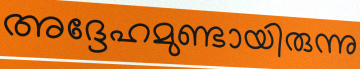
അദ്ദേഹമുണ്ടായിരുന്നു